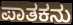
ಪಾತಕನು